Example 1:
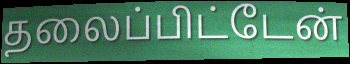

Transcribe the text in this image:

தலைப்பிட்டேன்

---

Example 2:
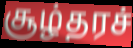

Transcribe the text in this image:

சூழ்தரச்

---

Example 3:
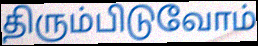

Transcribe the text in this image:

திரும்பிடுவோம்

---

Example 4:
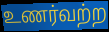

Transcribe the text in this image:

உணர்வற்ற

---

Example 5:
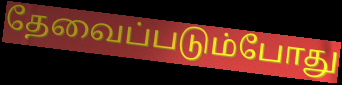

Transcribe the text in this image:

தேவைப்படும்போது